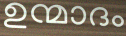
ഉന്മാദം